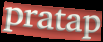
pratap